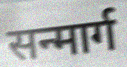
सन्मार्ग